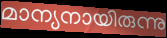
മാന്യനായിരുന്നു